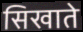
सिखाते